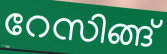
റേസിങ്ങ്